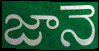
జానె